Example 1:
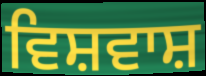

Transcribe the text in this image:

ਵਿਸ਼ਵਾਸ਼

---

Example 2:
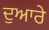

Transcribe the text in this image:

ਦੁਆਰੇ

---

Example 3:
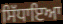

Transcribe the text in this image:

ਸਿੱਧਾਇਆ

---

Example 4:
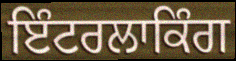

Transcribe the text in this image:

ਇੰਟਰਲਾਕਿੰਗ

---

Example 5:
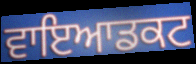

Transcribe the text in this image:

ਵਾਇਆਡਕਟ